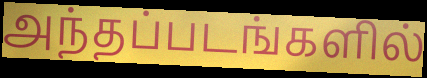
அந்தப்படங்களில்